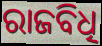
ରାଜବିଧି